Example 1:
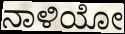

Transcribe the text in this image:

ನಾಳಿಯೋ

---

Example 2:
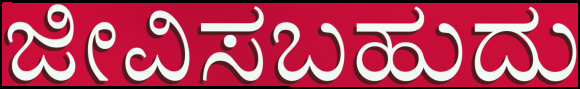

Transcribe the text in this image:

ಜೀವಿಸಬಹುದು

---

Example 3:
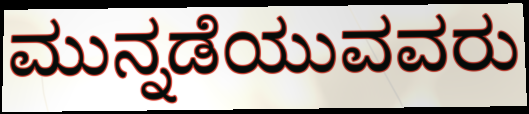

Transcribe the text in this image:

ಮುನ್ನಡೆಯುವವರು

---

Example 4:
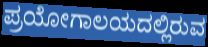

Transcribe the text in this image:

ಪ್ರಯೋಗಾಲಯದಲ್ಲಿರುವ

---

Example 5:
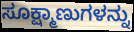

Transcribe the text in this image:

ಸೂಕ್ಷ್ಮಾಣುಗಳನ್ನು